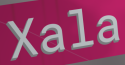
Xala